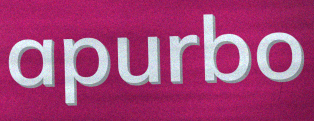
apurbo